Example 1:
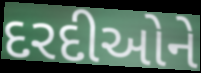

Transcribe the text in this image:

દરદીઓને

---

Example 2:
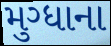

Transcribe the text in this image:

મુગ્ધાના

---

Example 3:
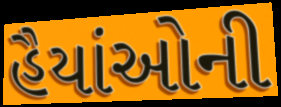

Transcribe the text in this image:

હૈયાંઓની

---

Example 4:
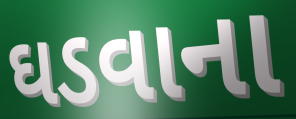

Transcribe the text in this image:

ઘડવાના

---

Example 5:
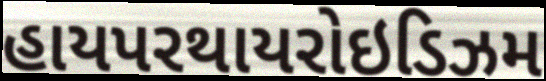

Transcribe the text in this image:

હાયપરથાયરોઇડિઝમ